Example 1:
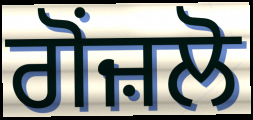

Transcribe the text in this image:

ਗੋਂਜ਼ਲੋ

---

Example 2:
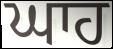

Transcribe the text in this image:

ਘਾਹ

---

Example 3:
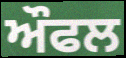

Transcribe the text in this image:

ਔਫਲ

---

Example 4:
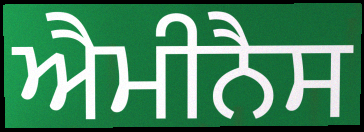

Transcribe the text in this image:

ਐਮੀਨੈਸ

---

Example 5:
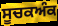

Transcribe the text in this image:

ਸੂਚਕਅੰਕ